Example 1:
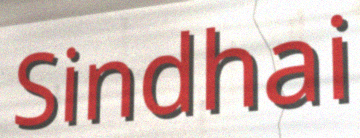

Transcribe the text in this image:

Sindhai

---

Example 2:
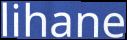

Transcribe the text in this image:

lihane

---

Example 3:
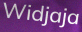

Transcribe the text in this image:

Widjaja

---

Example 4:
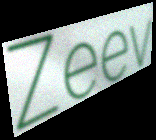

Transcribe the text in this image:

Zeev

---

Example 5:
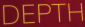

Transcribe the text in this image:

DEPTH